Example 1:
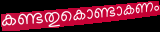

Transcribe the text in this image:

കണ്ടതുകൊണ്ടാകണം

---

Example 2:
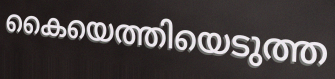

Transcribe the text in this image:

കൈയെത്തിയെടുത്ത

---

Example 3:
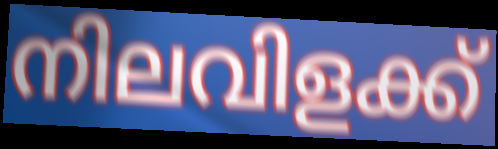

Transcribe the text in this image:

നിലവിളക്ക്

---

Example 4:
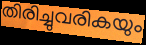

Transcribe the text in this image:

തിരിച്ചുവരികയും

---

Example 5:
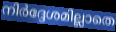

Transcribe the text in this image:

നിർദ്ദേശമില്ലാതെ